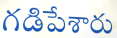
గడిపేశారు